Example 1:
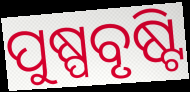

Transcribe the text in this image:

ପୁଷ୍ପବୃଷ୍ଟି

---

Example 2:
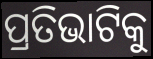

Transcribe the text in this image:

ପ୍ରତିଭାଟିକୁ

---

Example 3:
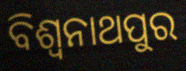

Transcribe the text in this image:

ବିଶ୍ଵନାଥପୁର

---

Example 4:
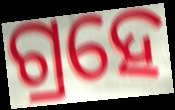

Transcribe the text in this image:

ଗ୍ରହେ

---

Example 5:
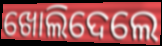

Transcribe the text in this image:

ଖୋଲିଦେଲେ